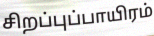
சிறப்புப்பாயிரம்